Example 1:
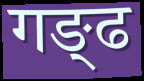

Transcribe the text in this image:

गङ्ढ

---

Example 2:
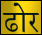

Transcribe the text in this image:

ढोर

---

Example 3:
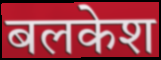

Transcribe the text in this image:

बलकेश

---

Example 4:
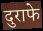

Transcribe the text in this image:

दुराफे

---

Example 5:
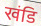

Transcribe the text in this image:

खंडि